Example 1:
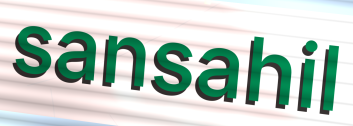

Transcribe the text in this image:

sansahil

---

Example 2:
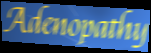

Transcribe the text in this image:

Adenopathy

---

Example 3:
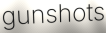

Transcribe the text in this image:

gunshots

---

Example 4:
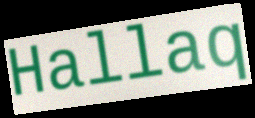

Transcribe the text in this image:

Hallaq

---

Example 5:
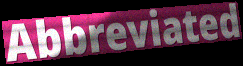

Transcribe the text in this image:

Abbreviated